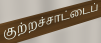
குற்றச்சாட்டைப்